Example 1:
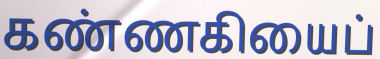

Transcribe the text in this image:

கண்ணகியைப்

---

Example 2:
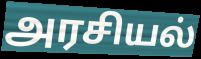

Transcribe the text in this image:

அரசியல்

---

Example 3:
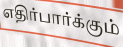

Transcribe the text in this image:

எதிர்பார்க்கும்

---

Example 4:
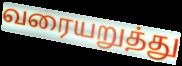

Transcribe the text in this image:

வரையறுத்து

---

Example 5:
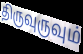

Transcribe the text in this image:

திருவுருவும்